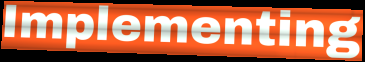
Implementing